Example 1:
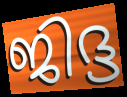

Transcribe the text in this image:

ജിദ്ദ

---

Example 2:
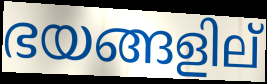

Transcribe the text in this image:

ഭയങ്ങളില്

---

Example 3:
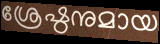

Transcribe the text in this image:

ശ്രേഷ്ഠനുമായ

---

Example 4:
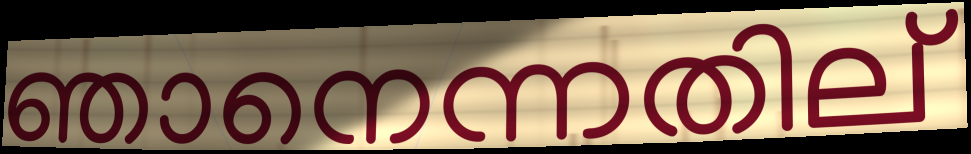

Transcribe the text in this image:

ഞാനെന്നതില്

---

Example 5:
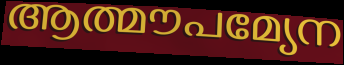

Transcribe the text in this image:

ആത്മൗപമ്യേന